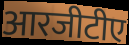
आरजीटीए